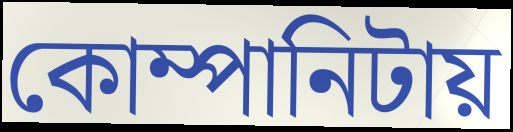
কোম্পানিটায়